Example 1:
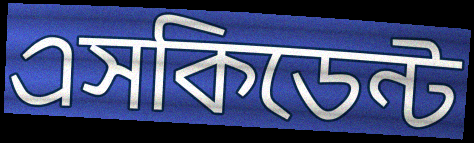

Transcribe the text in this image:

এসকিডেন্ট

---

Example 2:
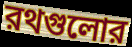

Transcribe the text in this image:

রথগুলোর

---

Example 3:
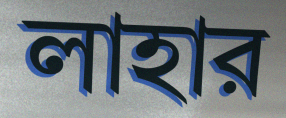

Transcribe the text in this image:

লাহার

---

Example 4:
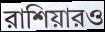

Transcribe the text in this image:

রাশিয়ারও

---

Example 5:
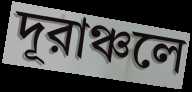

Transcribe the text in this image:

দূরাঞ্চলে